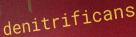
denitrificans